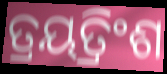
ତ୍ରୟତ୍ରିଂଶ